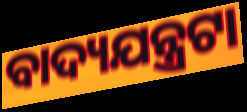
ବାଦ୍ୟଯନ୍ତ୍ରଟା